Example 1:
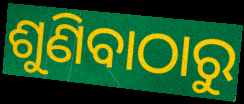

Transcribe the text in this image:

ଶୁଣିବାଠାରୁ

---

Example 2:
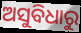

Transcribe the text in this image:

ଅସୁବିଧାରୁ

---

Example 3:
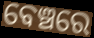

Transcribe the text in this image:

ବେଞ୍ଚରେ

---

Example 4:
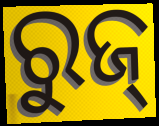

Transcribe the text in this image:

ରୁଜ୍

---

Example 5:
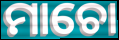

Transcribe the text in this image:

ମାଚୋ